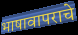
भाषावापराचे